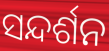
ସନ୍ଦର୍ଶନ